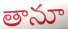
తానూ